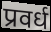
प्रवर्ध